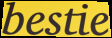
bestie